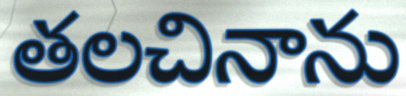
తలచినాను